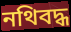
নথিবদ্ধ